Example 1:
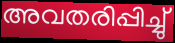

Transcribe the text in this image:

അവതരിപ്പിച്ചു്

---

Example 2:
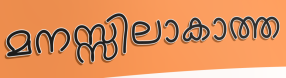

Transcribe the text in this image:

മനസ്സിലാകാത്ത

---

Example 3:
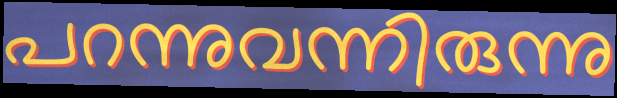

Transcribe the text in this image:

പറന്നുവന്നിരുന്നു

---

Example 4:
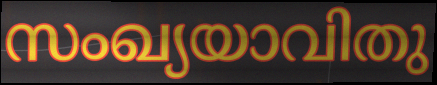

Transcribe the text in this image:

സംഖ്യയാവിതു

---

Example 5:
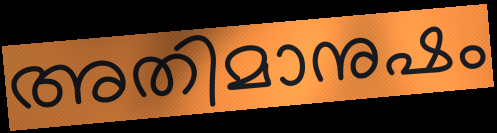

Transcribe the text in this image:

അതിമാനുഷം